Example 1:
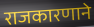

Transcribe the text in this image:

राजकारणाने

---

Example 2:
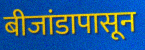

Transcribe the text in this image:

बीजांडापासून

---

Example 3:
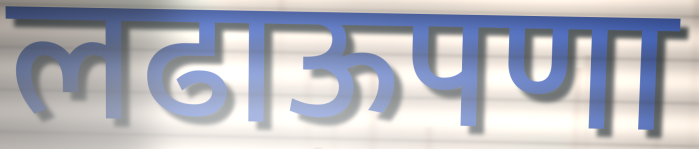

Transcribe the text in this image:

लढाऊपणा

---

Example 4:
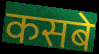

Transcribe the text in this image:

कसबे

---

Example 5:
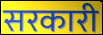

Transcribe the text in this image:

सरकारी